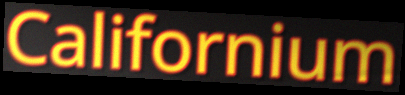
Californium